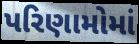
પરિણામોમાં